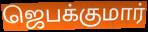
ஜெபக்குமார்